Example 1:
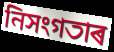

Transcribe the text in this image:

নিসংগতাৰ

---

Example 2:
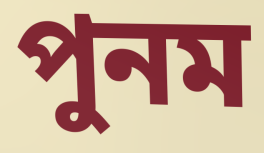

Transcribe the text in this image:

পুনম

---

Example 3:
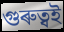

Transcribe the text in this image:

গুৰুত্বই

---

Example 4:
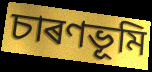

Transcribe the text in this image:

চাৰণভূমি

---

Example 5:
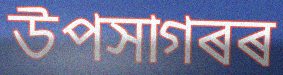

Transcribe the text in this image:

উপসাগৰৰ